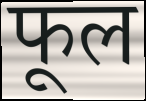
फूल